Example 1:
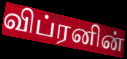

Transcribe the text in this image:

விப்ரனின்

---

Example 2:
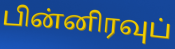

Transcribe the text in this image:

பின்னிரவுப்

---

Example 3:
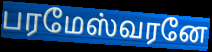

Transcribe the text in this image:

பரமேஸ்வரனே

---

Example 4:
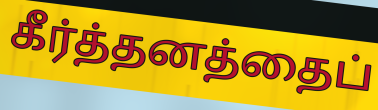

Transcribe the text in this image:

கீர்த்தனத்தைப்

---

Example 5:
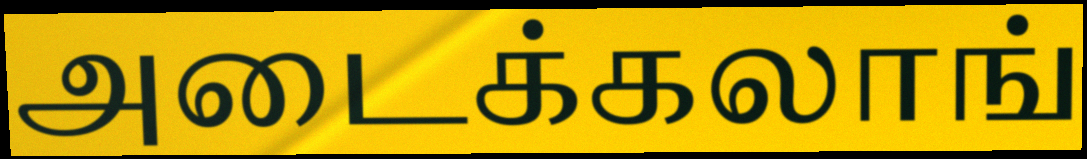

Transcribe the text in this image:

அடைக்கலாங்